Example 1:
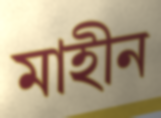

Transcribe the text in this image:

মাহীন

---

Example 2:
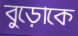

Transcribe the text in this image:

বুড়োকে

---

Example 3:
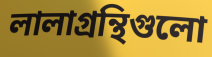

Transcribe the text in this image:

লালাগ্রন্থিগুলো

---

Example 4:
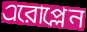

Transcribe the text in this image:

এরোপ্লেন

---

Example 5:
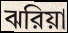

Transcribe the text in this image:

ঝরিয়া